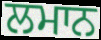
ਲਮਾਨ